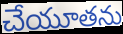
చేయూతను